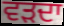
ਵੜਦਾ